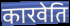
कारवेति